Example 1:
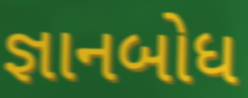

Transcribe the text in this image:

જ્ઞાનબોધ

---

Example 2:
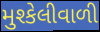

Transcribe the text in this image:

મુશ્કેલીવાળી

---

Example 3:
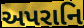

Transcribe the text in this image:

અપરાનિ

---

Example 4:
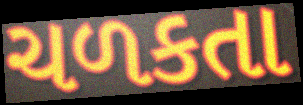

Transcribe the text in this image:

ચળકતા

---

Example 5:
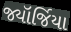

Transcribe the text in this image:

જ્યૉર્જિયા